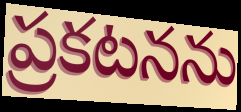
ప్రకటనను